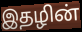
இதழின்